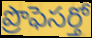
ప్రొఫెసర్తో